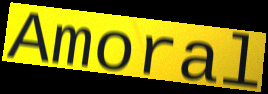
Amoral